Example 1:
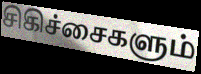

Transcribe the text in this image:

சிகிச்சைகளும்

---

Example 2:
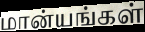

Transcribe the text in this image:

மான்யங்கள்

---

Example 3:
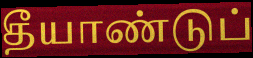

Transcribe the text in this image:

தீயாண்டுப்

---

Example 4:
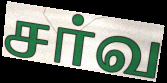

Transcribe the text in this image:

சர்வ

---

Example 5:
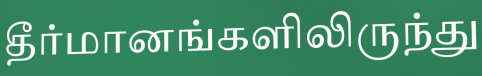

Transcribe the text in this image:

தீர்மானங்களிலிருந்து